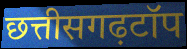
छत्तीसगढ़टॉप